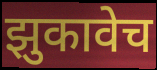
झुकावेच